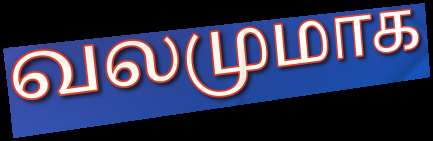
வலமுமாக